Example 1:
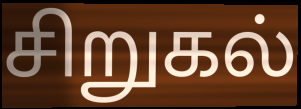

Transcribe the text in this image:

சிறுகல்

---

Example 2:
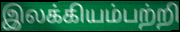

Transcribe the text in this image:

இலக்கியம்பற்றி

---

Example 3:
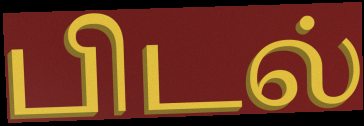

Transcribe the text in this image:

பிடல்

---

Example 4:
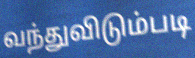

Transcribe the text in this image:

வந்துவிடும்படி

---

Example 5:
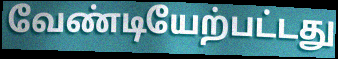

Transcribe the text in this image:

வேண்டியேற்பட்டது